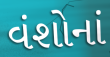
વંશોનાં